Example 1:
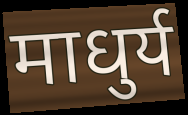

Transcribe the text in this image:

माधुर्य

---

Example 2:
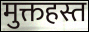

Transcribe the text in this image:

मुक्तहस्त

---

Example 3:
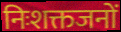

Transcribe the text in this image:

निःशक्तजनों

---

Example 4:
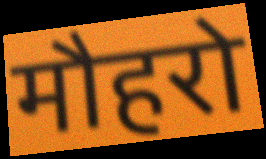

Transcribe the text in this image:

मौहरो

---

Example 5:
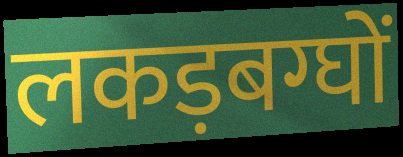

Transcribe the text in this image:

लकड़बग्घों